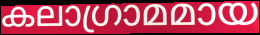
കലാഗ്രാമമായ